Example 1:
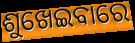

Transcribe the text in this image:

ଶୁଖେଇବାରେ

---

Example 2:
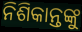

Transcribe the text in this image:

ନିଶିକାନ୍ତଙ୍କୁ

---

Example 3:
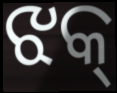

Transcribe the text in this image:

ଝକ୍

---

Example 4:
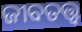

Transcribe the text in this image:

ଜୀବତତ୍ତ୍ୱ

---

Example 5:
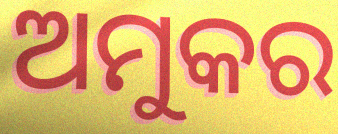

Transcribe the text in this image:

ଅମୁକର